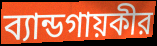
ব্যান্ডগায়কীর